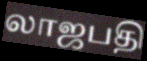
லாஜபதி